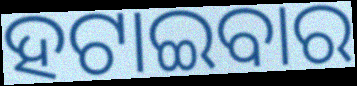
ହଟାଇବାର